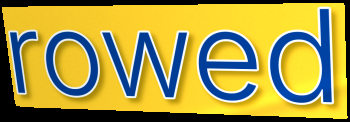
rowed